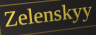
Zelenskyy